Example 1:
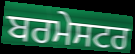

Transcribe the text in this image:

ਬਰਮੇਸਟਰ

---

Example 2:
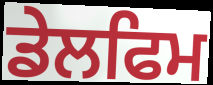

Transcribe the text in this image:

ਡੇਲਫਿਮ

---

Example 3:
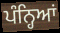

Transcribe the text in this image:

ਪੰਨ੍ਹਿਆਂ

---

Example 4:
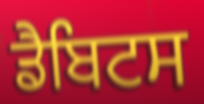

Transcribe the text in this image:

ਡੈਬਿਟਸ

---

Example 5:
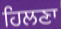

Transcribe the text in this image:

ਹਿਲਣਾ